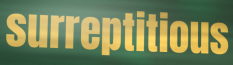
surreptitious